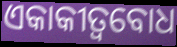
ଏକାକୀତ୍ୱବୋଧ